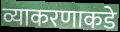
व्याकरणाकडे